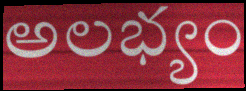
అలభ్యం